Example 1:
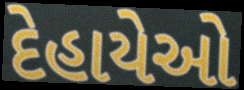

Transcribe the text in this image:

દેહાયેઓ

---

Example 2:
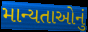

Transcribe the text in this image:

માન્યતાઓનું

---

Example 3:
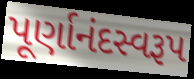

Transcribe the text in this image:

પૂર્ણાનંદસ્વરૂપ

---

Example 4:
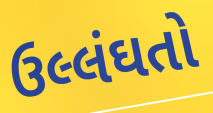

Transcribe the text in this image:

ઉલ્લંઘતો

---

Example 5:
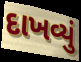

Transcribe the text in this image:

દાખવ્યું